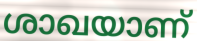
ശാഖയാണ്